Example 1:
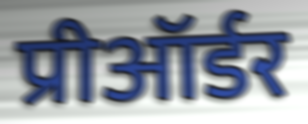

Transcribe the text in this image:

प्रीऑर्डर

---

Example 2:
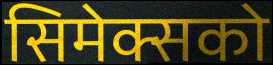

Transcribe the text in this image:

सिमेक्सको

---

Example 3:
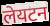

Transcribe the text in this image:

लेयटन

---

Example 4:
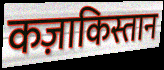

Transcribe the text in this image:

कज़ाकिस्तान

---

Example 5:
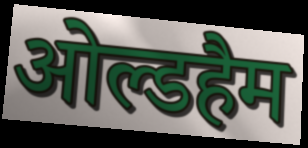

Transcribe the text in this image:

ओल्डहैम